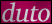
duto